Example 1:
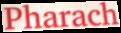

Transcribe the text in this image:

Pharach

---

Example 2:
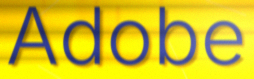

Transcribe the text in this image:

Adobe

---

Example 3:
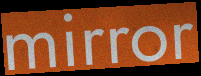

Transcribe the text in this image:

mirror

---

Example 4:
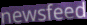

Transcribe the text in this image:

newsfeed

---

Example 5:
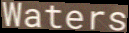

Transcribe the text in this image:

Waters